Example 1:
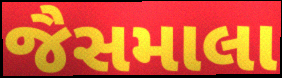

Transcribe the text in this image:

જૈસમાલા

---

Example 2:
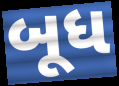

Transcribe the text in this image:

બૂધ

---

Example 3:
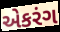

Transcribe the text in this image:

એકરંગ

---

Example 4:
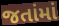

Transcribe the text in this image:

જતાંમાં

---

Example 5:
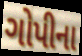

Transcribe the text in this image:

ગોપીના